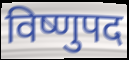
विष्‍णुपद